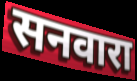
सनवारा